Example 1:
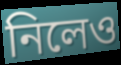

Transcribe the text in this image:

নিলেও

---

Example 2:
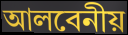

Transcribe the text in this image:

আলবেনীয়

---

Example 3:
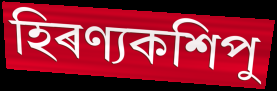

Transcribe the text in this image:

হিৰণ্যকশিপু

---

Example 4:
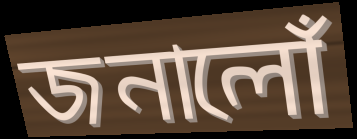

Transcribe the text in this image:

জনালোঁ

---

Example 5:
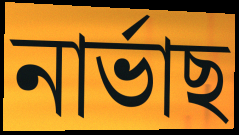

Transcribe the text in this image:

নাৰ্ভাছ